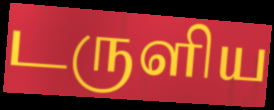
டருளிய